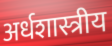
अर्धशास्त्रीय